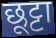
छूट्टा